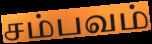
சம்பவம்